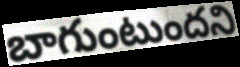
బాగుంటుందని